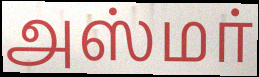
அஸ்மர்